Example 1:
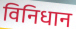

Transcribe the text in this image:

विनिधान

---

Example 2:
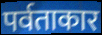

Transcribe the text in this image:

पर्वताकार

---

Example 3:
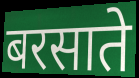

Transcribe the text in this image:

बरसाते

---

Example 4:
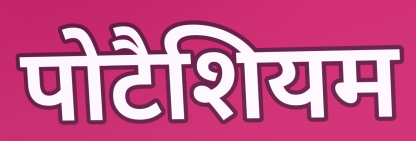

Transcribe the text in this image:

पोटैशियम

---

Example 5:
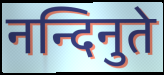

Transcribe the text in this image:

नन्दिनुते